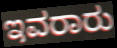
ಇವರಾರು